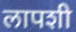
लापशी